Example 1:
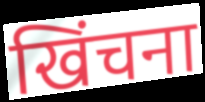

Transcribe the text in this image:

खिंचना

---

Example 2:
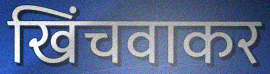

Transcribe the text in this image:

खिंचवाकर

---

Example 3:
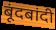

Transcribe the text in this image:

बूंदबांदी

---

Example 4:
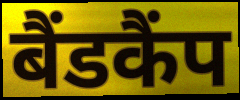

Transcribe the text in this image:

बैंडकैंप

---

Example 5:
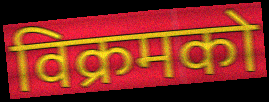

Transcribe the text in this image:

विक्रमको